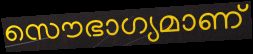
സൌഭാഗ്യമാണ്